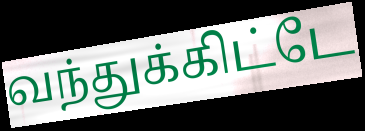
வந்துக்கிட்டே